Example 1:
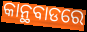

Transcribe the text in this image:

କାନ୍ଥବାଡରେ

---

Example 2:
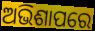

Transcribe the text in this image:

ଅଭିଶାପରେ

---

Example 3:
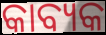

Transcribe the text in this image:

କାବ୍ୟକ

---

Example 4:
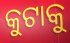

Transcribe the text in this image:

କୁଟାକୁ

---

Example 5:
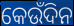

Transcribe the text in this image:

କେଉଁଦିନ